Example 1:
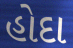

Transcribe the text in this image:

હોદા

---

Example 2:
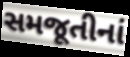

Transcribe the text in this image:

સમજૂતીનાં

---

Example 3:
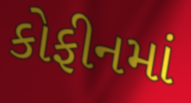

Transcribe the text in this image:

કોફીનમાં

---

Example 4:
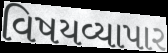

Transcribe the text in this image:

વિષયવ્યાપાર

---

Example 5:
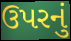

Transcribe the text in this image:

ઉપરનું